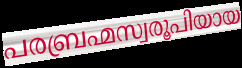
പരബ്രഹ്മസ്വരൂപിയായ